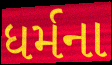
ધર્મના